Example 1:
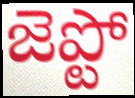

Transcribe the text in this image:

జెప్టో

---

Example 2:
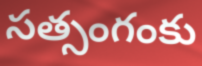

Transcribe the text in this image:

సత్సంగంకు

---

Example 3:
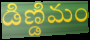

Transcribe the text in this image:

డిణ్డిమం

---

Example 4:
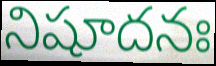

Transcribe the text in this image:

నిషూదనః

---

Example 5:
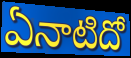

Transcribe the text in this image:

ఏనాటిదో